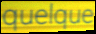
quelque